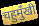
चहुमुँखी